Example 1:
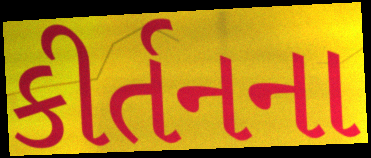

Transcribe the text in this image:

કીર્તનના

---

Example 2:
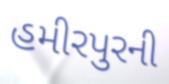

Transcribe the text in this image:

હમીરપુરની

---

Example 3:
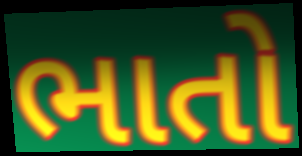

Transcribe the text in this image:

ભાતો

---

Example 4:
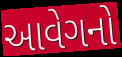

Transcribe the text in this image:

આવેગનો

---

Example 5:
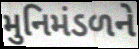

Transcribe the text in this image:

મુનિમંડળને